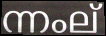
ന്നംല്